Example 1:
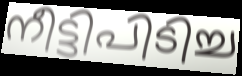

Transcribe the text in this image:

നീട്ടിപിടിച്ച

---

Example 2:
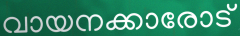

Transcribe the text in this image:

വായനക്കാരോട്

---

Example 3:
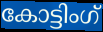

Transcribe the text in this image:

കോട്ടിംഗ്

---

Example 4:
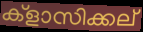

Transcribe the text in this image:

ക്ളാസിക്കല്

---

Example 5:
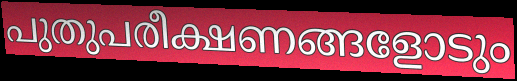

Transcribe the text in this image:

പുതുപരീക്ഷണങ്ങളോടും